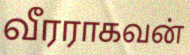
வீரராகவன்